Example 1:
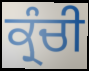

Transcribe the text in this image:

ਕ੍ਰੰਚੀ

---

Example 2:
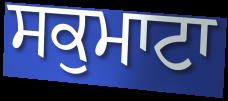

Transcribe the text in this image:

ਸਕੁਮਾਟਾ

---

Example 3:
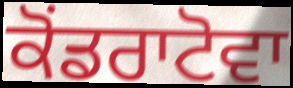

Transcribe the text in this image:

ਕੋਂਡਰਾਟੋਵਾ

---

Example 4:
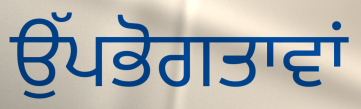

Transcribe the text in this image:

ਉੱਪਭੋਗਤਾਵਾਂ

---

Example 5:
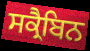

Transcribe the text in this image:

ਸਕ੍ਰੈਬਿਨ